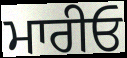
ਮਾਰੀਓ